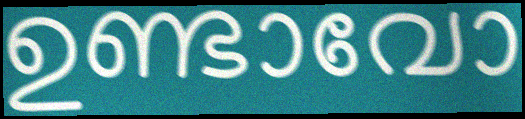
ഉണ്ടാവോ